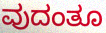
ವುದಂತೂ